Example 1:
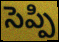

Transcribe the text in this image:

సెప్పి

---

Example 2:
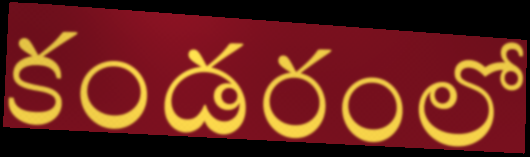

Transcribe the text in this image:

కండరంలో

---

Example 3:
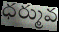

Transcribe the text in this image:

ధర్మువ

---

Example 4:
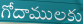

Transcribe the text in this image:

గోదాములకు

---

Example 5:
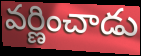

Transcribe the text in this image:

వర్ణించాడు